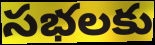
సభలకు